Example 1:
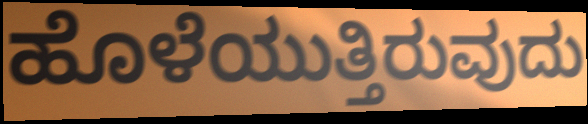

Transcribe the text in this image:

ಹೊಳೆಯುತ್ತಿರುವುದು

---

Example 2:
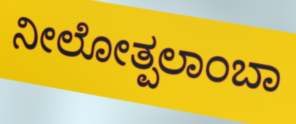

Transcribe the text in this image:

ನೀಲೋತ್ಪಲಾಂಬಾ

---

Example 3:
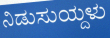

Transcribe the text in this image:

ನಿಡುಸುಯ್ದಳು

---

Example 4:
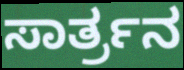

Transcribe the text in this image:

ಸಾರ್ತ್ರನ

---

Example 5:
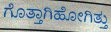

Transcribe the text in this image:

ಗೊತ್ತಾಗಿಹೋಗಿತ್ತು